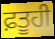
ਫ਼ਤੂਹੀ